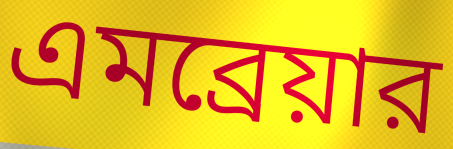
এমব্রেয়ার